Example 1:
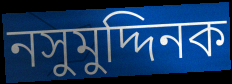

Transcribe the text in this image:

নসুমুদ্দিনক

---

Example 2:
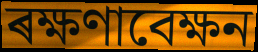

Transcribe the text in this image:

ৰক্ষণাবেক্ষন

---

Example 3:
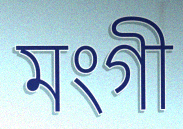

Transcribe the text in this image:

মংগী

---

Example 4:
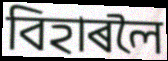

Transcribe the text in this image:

বিহাৰলৈ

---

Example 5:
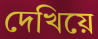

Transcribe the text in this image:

দেখিয়ে